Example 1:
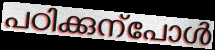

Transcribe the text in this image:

പഠിക്കുന്പോൾ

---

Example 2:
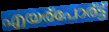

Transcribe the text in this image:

എയര്പോര്ട്ട്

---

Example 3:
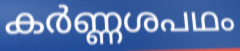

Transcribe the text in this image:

കർണ്ണശപഥം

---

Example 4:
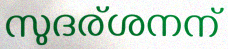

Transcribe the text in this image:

സുദര്ശനന്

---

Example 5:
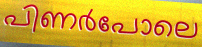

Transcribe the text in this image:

പിണർപോലെ